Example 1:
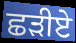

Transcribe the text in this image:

ਛੜੀਏ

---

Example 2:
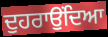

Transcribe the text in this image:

ਦੁਹਰਾਉਂਦਿਆ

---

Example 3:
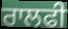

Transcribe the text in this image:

ਰਾਲਫੀ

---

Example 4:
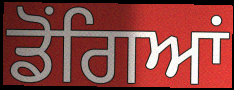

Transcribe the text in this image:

ਡੋਂਗਿਆਂ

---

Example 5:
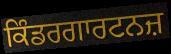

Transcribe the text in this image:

ਕਿੰਡਰਗਾਰਟਨਜ਼